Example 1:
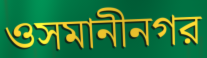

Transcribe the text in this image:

ওসমানীনগর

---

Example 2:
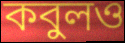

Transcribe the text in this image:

কবুলও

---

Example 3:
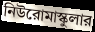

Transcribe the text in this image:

নিউরোমাস্কুলার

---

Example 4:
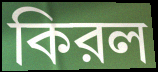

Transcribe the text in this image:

কিরল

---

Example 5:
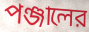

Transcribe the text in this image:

পঞ্জালের